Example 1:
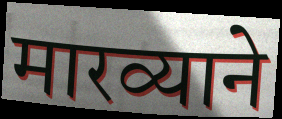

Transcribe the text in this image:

मारव्याने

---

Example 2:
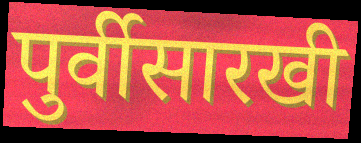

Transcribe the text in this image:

पुर्वीसारखी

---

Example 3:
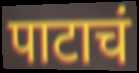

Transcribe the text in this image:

पाटाचं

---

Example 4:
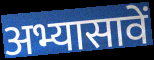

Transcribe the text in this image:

अभ्यासावें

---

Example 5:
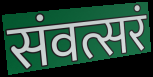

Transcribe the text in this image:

संवत्सरं